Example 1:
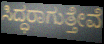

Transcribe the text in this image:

ಸಿದ್ಧರಾಗುತ್ತೇವೆ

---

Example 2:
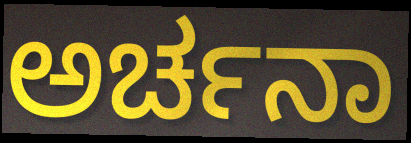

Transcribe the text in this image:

ಅರ್ಚನಾ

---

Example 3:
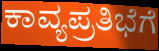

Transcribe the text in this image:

ಕಾವ್ಯಪ್ರತಿಭೆಗೆ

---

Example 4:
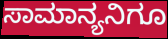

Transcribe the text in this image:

ಸಾಮಾನ್ಯನಿಗೂ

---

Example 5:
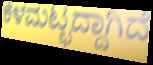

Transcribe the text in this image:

ಕೆಳಮಟ್ಟದ್ದಾಗಿದೆ